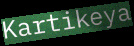
Kartikeya